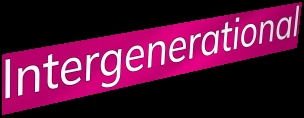
Intergenerational